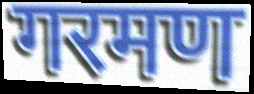
गरमण